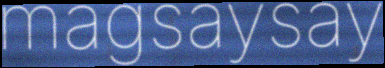
magsaysay